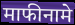
माफीनामे